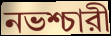
নভশ্চারী